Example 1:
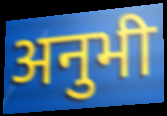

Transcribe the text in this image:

अनुभी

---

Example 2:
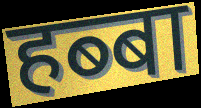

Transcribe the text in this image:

हब्‍बा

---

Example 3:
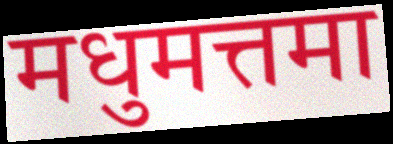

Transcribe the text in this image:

मधुमत्तमा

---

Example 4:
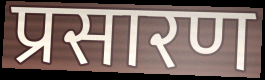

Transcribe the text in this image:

प्रसारण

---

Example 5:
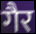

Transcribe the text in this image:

गैर